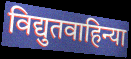
विद्युतवाहिन्या